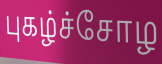
புகழ்ச்சோழ